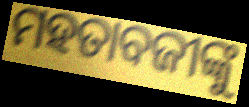
ମହତାବଜୀଙ୍କୁ